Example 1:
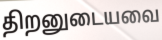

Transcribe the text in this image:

திறனுடையவை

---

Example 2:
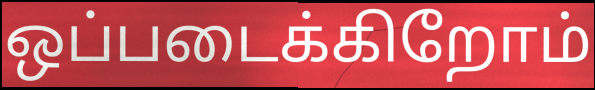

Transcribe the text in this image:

ஒப்படைக்கிறோம்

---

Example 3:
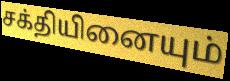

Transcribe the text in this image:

சக்தியினையும்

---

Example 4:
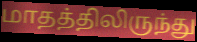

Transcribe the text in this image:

மாதத்திலிருந்து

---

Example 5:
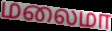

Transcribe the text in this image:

மலைமா